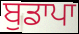
ਬੁਡਾਪਾ